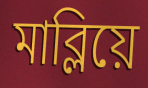
মাব্লিয়ে